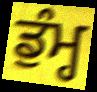
ਡੁੰਮ੍ਹ